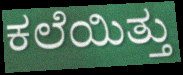
ಕಲೆಯಿತ್ತು